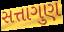
સત્તાગુણ